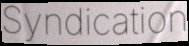
Syndication